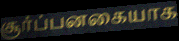
சூர்ப்பனகையாக